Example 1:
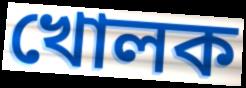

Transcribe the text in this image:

খোলক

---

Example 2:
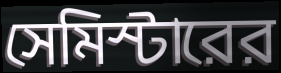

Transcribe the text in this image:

সেমিস্টারের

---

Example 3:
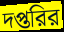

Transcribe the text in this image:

দপ্তরির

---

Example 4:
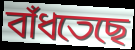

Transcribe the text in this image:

বাঁধতেছে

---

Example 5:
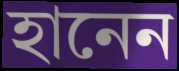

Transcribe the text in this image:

হানেন